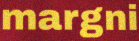
margni